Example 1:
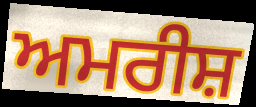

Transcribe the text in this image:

ਅਮਰੀਸ਼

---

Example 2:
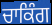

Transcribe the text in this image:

ਚਾਕਿੰਗ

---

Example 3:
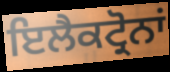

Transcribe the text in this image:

ਇਲੈਕਟ੍ਰੋਨਾਂ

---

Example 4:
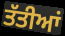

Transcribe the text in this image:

ਤੱਤੀਆਂ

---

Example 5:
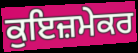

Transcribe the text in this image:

ਕੁਇਜ਼ਮੇਕਰ